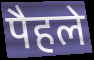
पैहले